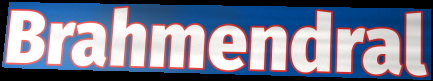
Brahmendral